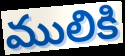
ములికి